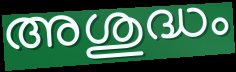
അശുദ്ധം